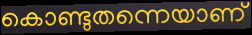
കൊണ്ടുതന്നെയാണ്